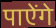
पाऐंगे